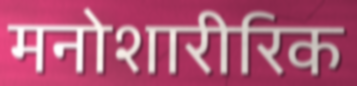
मनोशारीरिक